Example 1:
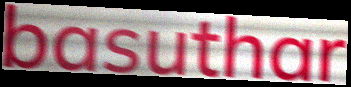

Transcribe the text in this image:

basuthar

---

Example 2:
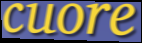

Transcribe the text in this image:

cuore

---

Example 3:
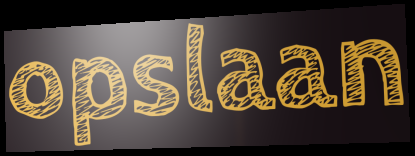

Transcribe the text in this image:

opslaan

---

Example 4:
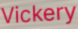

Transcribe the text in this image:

Vickery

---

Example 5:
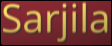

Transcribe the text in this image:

Sarjila